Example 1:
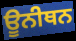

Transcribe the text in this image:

ਊਨੀਥਨ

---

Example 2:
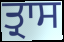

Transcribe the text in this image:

ਤ੍ਰਾਸ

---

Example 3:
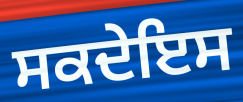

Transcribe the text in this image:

ਸਕਦੇਇਸ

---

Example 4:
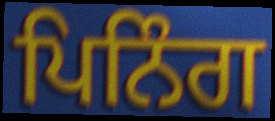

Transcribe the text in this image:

ਪਿਨਿੰਗ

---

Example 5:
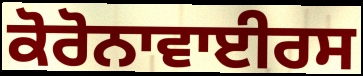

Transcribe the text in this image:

ਕੋਰੋਨਾਵਾਈਰਸ